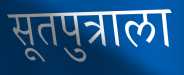
सूतपुत्राला